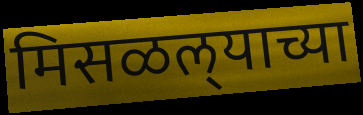
मिसळल्याच्या